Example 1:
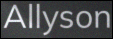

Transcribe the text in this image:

Allyson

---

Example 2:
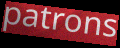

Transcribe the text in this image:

patrons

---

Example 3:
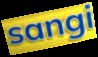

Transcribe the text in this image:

sangi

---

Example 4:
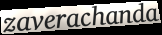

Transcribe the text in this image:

zaverachanda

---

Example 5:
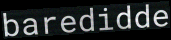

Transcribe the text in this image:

baredidde